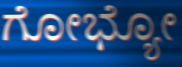
ಗೋಭ್ಯೋ